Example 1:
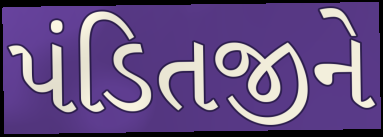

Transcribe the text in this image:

પંડિતજીને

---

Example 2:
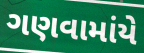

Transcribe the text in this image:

ગણવામાંયે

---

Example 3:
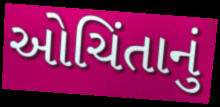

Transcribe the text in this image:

ઓચિંતાનું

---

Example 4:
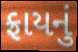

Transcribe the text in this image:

ફ્રાયનું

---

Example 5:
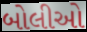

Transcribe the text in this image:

બોલીઓ